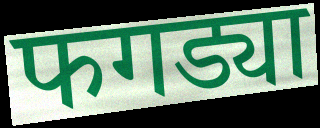
फगड्या